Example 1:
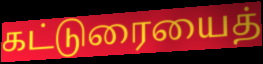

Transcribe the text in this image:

கட்டுரையைத்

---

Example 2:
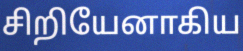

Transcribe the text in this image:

சிறியேனாகிய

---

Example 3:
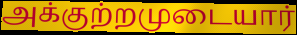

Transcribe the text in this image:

அக்குற்றமுடையார்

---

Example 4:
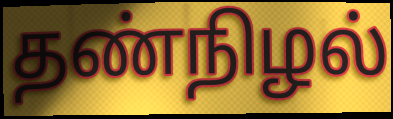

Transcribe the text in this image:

தண்நிழல்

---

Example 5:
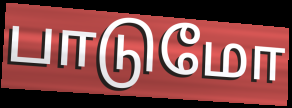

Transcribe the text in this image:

பாடுமோ